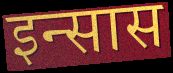
इन्सास